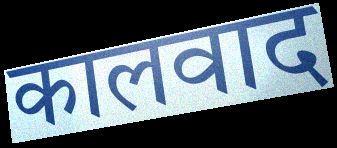
कालवाद